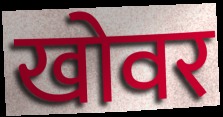
खोवर